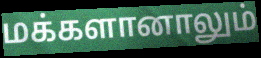
மக்களானாலும்